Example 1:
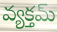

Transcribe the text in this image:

వ్యక్తమ్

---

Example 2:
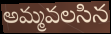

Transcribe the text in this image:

అమ్మవలసిన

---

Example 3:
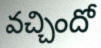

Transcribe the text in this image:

వచ్చిందో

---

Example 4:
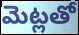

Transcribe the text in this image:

మెట్లతో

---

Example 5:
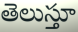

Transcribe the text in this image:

తెలుస్తూ